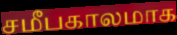
சமீபகாலமாக